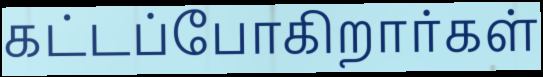
கட்டப்போகிறார்கள்